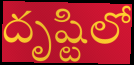
దృష్టిలో